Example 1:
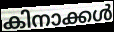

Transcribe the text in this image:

കിനാക്കൾ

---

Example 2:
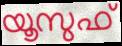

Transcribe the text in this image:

യൂസുഫ്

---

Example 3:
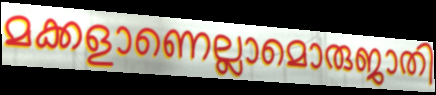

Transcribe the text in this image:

മക്കളാണെല്ലാമൊരുജാതി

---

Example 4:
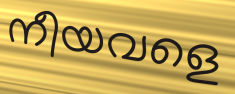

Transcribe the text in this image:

നീയവളെ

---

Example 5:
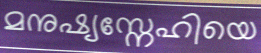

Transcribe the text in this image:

മനുഷ്യസ്നേഹിയെ